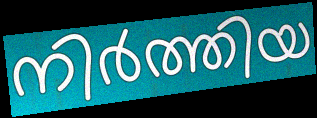
നിർത്തിയ